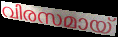
വിരസമായ്